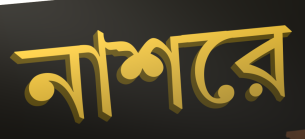
নাশরে